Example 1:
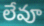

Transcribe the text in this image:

లేవూ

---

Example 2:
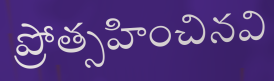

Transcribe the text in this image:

ప్రోత్సహించినవి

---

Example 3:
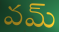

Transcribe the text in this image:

వమ్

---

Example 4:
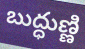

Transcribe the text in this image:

బుద్ధుణ్ణి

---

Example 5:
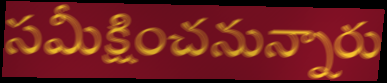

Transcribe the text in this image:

సమీక్షించనున్నారు